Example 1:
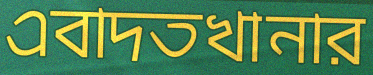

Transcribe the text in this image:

এবাদতখানার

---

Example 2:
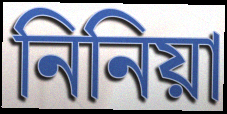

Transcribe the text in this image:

নিনিয়া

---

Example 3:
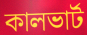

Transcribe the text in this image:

কালভার্ট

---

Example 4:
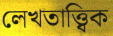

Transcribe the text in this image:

লেখতাত্ত্বিক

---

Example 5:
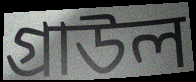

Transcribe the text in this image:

গ্রাউল